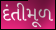
દંતીમૂળ